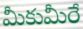
మీకుమీరే